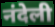
नंदेली